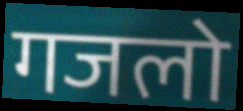
गजलो